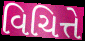
વિચિત્તે